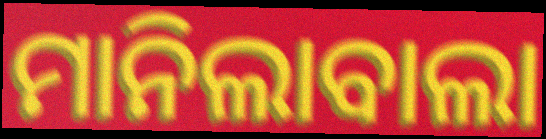
ମାନିଲାବାଲା